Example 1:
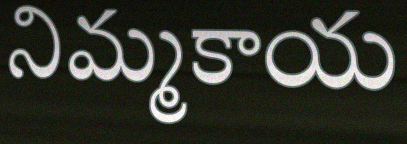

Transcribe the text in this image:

నిమ్మకాయ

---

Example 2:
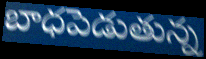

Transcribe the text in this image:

బాధపెడుతున్న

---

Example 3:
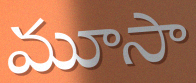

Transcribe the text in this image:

మూసా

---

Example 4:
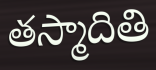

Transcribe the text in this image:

తస్మాదితి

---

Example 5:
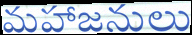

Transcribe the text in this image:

మహాజనులు